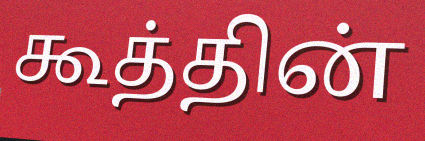
கூத்தின்